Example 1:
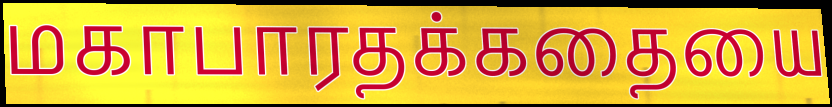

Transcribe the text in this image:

மகாபாரதக்கதையை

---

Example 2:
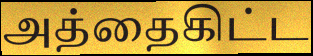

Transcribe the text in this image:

அத்தைகிட்ட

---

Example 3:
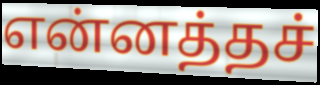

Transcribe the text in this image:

என்னத்தச்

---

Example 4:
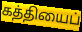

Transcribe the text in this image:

கத்தியைப்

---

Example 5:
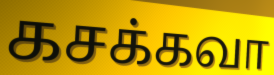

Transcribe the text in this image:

கசக்கவா